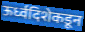
ऊर्ध्वदिशेकडून